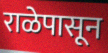
राळेपासून